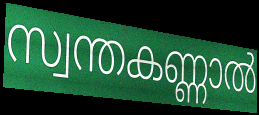
സ്വന്തകണ്ണാൽ